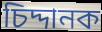
চিদ্দানক